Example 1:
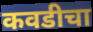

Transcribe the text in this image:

कवडीचा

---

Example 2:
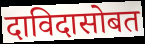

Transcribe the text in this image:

दाविदासोबत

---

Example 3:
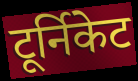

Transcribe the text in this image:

टूर्निकेट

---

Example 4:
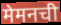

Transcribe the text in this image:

मेमनची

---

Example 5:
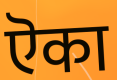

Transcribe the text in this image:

ऎका